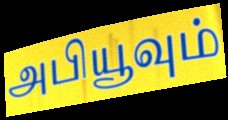
அபியூவும்